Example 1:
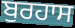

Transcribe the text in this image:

ਬੁਰਹਾਸ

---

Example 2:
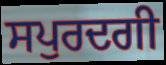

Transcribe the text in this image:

ਸਪੁਰਦਗੀ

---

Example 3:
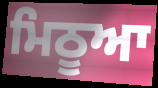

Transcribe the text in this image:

ਮਿਠੂਆ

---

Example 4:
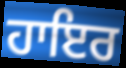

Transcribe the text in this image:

ਹਾਇਰ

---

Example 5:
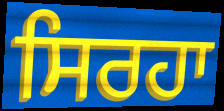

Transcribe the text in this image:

ਸਿਰਹਾ